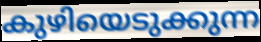
കുഴിയെടുക്കുന്ന